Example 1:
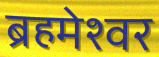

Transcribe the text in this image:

ब्रहमेश्वर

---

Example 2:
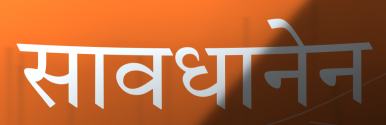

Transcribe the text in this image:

सावधानेन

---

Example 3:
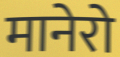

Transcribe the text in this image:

मानेरो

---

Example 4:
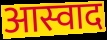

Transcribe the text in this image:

आस्‍वाद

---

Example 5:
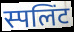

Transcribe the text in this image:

स्पलिंट